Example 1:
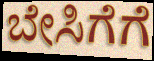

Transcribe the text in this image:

ಬೇಸಿಗೆಗೆ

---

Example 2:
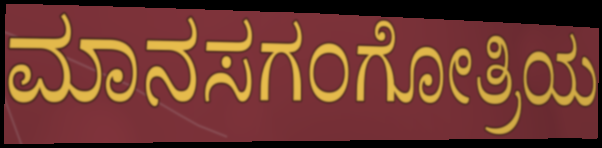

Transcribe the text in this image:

ಮಾನಸಗಂಗೋತ್ರಿಯ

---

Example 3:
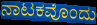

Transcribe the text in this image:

ನಾಟಕವೊಂದು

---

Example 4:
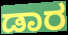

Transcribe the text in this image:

ಡಾರ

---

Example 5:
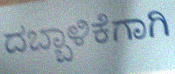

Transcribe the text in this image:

ದಬ್ಬಾಳಿಕೆಗಾಗಿ